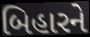
બિહારને